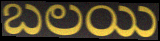
బలయి